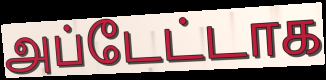
அப்டேட்டாக